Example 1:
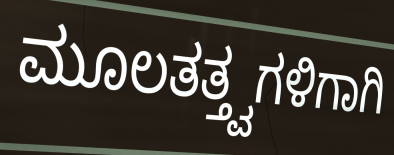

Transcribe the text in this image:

ಮೂಲತತ್ತ್ವಗಳಿಗಾಗಿ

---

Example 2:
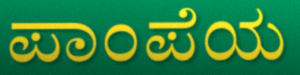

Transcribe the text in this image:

ಪಾಂಪೆಯ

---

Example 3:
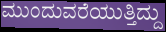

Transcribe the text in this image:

ಮುಂದುವರೆಯುತ್ತಿದ್ದು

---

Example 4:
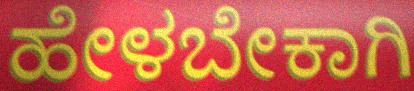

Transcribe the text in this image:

ಹೇಳಬೇಕಾಗಿ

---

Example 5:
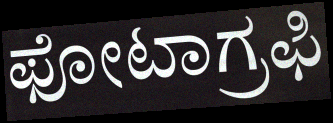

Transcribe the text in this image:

ಫೋಟಾಗ್ರಫಿ